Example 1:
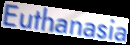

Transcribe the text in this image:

Euthanasia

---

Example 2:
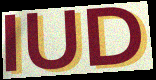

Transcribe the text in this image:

IUD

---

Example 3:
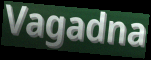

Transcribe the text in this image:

Vagadna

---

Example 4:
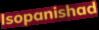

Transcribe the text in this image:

Isopanishad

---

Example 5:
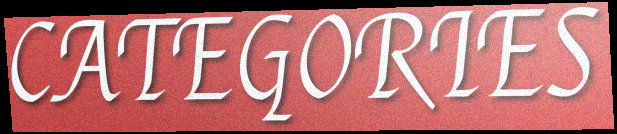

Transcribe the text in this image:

CATEGORIES